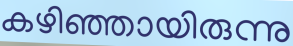
കഴിഞ്ഞായിരുന്നു